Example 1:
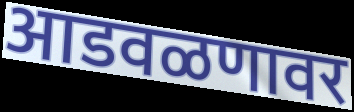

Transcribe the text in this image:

आडवळणावर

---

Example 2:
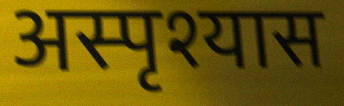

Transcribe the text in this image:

अस्पृश्यास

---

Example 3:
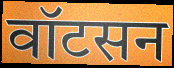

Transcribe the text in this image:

वॉटसन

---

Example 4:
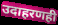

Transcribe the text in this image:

उदाहरणही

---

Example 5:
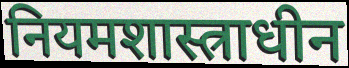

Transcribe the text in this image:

नियमशास्त्राधीन